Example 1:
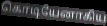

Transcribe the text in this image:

கொடியேனாகிய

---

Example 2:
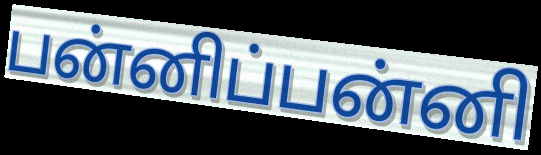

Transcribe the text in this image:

பன்னிப்பன்னி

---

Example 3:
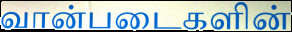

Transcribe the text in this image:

வான்படைகளின்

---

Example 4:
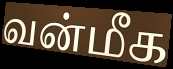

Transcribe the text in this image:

வன்மீக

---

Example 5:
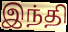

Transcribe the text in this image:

இந்தி